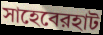
সাহেবেরহাট